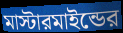
মাস্টারমাইন্ডের